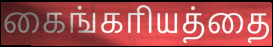
கைங்கரியத்தை